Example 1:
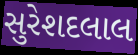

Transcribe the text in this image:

સુરેશદલાલ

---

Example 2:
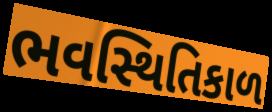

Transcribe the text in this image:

ભવસ્થિતિકાળ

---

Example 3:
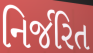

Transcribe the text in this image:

નિર્જરિત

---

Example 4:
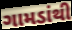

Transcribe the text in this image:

ગામડાંથી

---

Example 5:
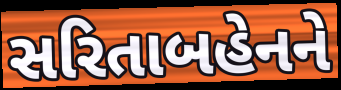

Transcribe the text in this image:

સરિતાબહેનને